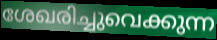
ശേഖരിച്ചുവെക്കുന്ന